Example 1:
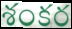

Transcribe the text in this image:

శంకర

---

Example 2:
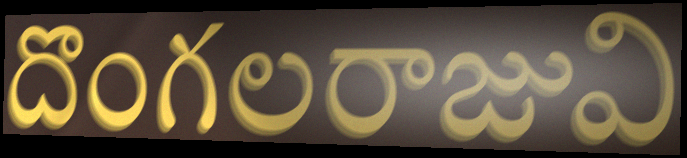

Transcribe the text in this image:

దొంగలరాజువి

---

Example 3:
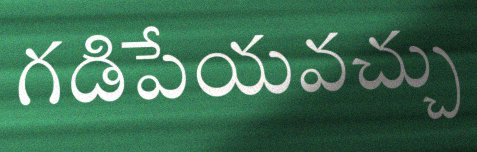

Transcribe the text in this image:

గడిపేయవచ్చు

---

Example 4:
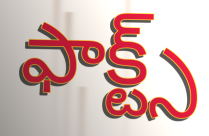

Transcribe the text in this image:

ఫాక్ట్స్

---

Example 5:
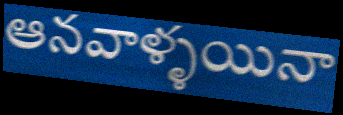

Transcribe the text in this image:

ఆనవాళ్ళయినా